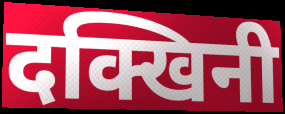
दक्खिनी